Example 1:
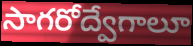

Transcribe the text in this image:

సాగరోద్వేగాలూ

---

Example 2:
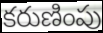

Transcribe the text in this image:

కరుణింపు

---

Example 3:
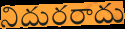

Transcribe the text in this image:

నిదురరాదు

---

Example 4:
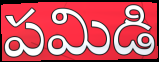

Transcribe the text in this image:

పమిడి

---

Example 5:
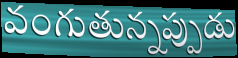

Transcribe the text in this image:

వంగుతున్నప్పుడు